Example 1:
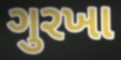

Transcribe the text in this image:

ગુરખા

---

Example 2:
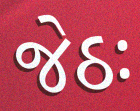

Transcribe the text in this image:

જેઠઃ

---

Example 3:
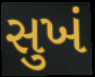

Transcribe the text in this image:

સુખં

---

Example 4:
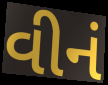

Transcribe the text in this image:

વીનં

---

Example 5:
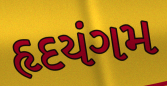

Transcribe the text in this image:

હૃદયંગમ